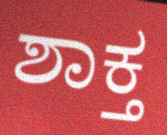
ಶಾಕ್ತ